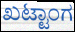
ಖಟ್ಟಾಂಗ